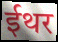
ईथर